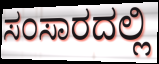
ಸಂಸಾರದಲ್ಲಿ